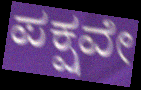
ಪಕ್ಷವೇ